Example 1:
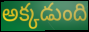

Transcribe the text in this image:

అక్కడుంది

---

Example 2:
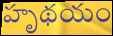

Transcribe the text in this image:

హృథయం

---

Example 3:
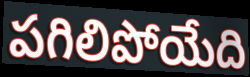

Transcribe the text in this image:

పగిలిపోయేది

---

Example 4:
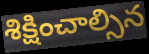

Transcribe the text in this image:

శిక్షించాల్సిన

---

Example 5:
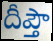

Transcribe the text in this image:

దీప్తౌ